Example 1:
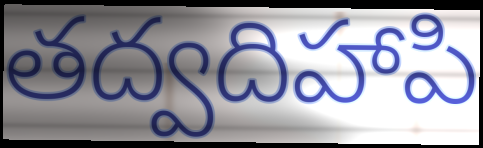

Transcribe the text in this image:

తద్వదిహాపి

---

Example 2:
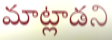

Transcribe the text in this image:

మాట్లాడని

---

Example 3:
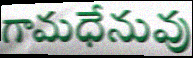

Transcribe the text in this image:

గామధేనువు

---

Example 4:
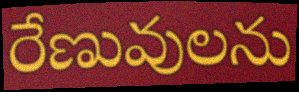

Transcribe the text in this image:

రేణువులను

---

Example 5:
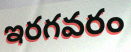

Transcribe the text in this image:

ఇరగవరం